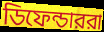
ডিফেন্ডাররা